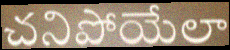
చనిపోయేలా